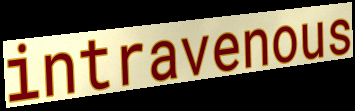
intravenous